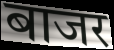
बाजर